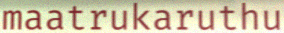
maatrukaruthu